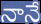
నానే